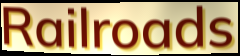
Railroads